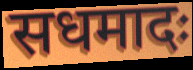
सधमादः